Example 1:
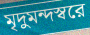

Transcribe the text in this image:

মৃদুমন্দস্বরে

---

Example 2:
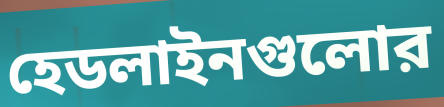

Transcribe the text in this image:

হেডলাইনগুলোর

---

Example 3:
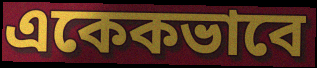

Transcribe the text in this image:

একেকভাবে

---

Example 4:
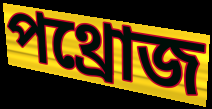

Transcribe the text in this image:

পথ্রোজ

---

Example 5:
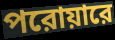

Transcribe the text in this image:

পরোয়ারে